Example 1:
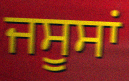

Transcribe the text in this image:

ਜਸੂਸਾਂ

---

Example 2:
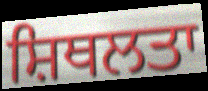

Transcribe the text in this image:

ਸ਼ਿਥਲਤਾ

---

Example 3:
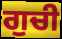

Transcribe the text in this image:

ਗੁਚੀ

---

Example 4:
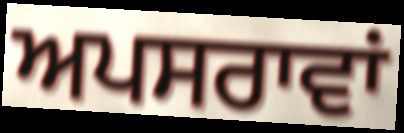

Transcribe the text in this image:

ਅਪਸਰਾਵਾਂ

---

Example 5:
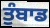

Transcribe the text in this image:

ਤੁੰਬਾਡ